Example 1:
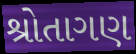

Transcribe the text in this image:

શ્રોતાગણ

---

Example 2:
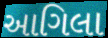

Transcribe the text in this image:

આગિલા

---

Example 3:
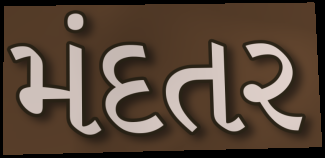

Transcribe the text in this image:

મંદતર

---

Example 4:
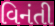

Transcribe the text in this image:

વિનંતી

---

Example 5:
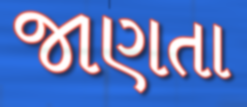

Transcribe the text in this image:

જાણતા